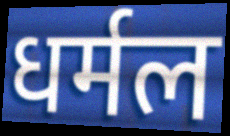
धर्मल